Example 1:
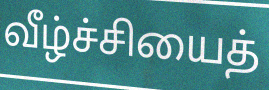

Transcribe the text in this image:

வீழ்ச்சியைத்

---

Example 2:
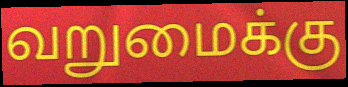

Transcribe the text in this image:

வறுமைக்கு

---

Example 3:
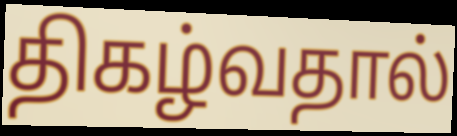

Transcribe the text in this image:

திகழ்வதால்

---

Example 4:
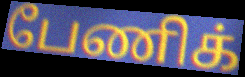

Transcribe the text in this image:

பேணிக்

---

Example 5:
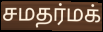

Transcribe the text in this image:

சமதர்மக்